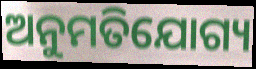
ଅନୁମତିଯୋଗ୍ୟ